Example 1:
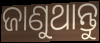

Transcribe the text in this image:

ଜାଣୁଥାନ୍ତୁ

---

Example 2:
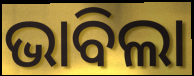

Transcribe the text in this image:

ଭାବିଲା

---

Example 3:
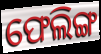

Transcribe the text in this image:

ଫେଲିଙ୍ଗ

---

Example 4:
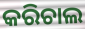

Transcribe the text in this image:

କରିଚାଲ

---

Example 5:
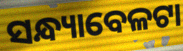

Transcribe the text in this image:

ସନ୍ଧ୍ୟାବେଳଟା